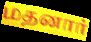
மதனார்